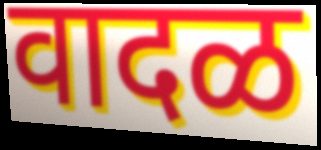
वादळ